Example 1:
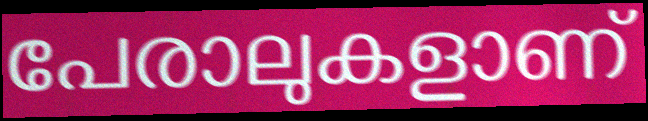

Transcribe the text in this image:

പേരാലുകളാണ്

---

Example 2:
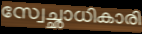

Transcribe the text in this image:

സ്വേച്ഛാധികാരി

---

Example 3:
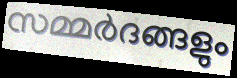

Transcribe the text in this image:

സമ്മർദങ്ങളും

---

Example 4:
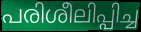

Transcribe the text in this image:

പരിശീലിപ്പിച്ച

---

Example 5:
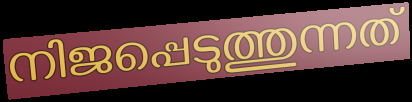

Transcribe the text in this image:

നിജപ്പെടുത്തുന്നത്